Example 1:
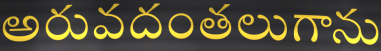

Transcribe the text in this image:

అరువదంతలుగాను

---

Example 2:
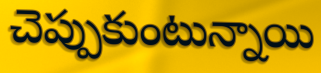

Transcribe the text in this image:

చెప్పుకుంటున్నాయి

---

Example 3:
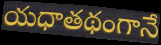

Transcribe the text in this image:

యధాతథంగానే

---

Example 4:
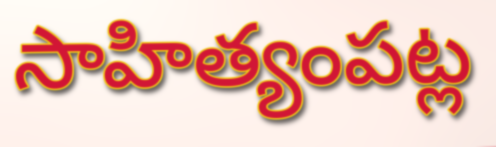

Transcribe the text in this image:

సాహిత్యంపట్ల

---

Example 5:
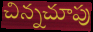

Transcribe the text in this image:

చిన్నచూపు